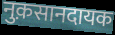
नुक़सानदायक